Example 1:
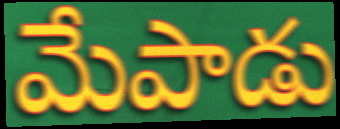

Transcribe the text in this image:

మేపాడు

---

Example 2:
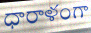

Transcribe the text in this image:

ధారాళంగా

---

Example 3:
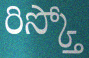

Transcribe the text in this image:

రిస్క్తో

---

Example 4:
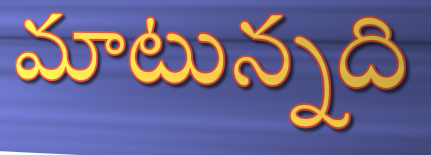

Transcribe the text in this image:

మాటున్నది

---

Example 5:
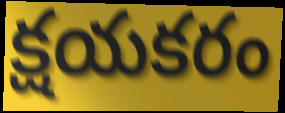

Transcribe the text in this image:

క్షయకరం